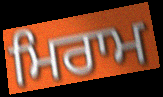
ਮਿਰਾਮ